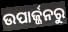
ଉପାର୍ଜ୍ଜନରୁ